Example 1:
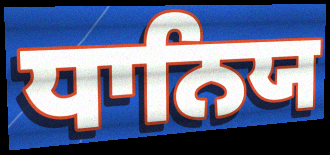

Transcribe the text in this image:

ਧਾਨਿਯ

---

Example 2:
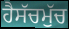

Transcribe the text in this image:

ਹੈਸੱਚਮੁੱਚ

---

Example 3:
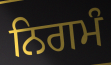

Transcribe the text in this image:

ਨਿਗਮੰ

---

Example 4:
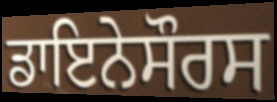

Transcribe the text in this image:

ਡਾਇਨੇਸੌਰਸ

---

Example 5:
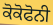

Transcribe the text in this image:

ਕੋਕੋਫੋਨੀ